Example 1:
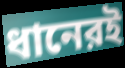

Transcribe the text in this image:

ধানেরই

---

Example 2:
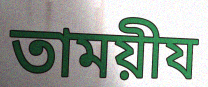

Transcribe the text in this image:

তাময়ীয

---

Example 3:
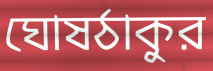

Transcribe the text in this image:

ঘোষঠাকুর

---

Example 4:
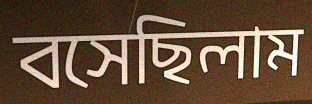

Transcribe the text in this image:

বসেছিলাম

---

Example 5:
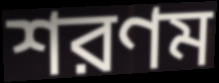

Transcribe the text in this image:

শরণম